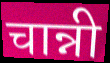
चान्नी